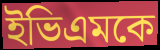
ইভিএমকে